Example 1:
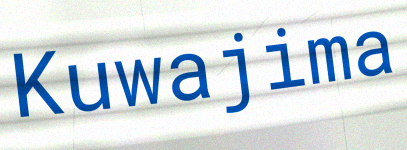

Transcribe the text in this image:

Kuwajima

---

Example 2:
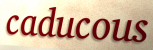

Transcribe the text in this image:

caducous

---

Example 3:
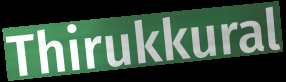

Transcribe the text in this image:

Thirukkural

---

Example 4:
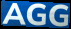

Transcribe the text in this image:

AGG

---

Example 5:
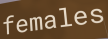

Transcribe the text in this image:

females